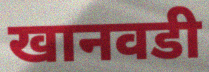
खानवडी